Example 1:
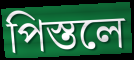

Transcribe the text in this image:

পিস্তলে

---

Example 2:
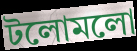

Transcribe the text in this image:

টলোমলো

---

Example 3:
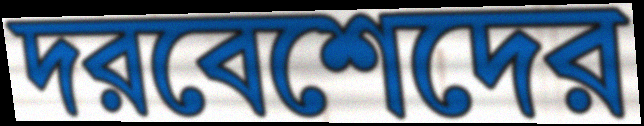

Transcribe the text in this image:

দরবেশেদের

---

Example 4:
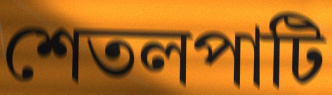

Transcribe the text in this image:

শেতলপাটি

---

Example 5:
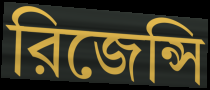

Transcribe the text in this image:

রিজেন্সি